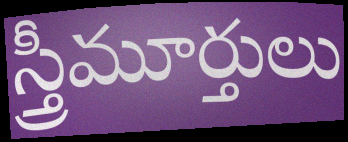
స్త్రీమూర్తులు